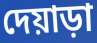
দেয়াড়া